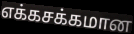
எக்கசக்கமான